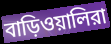
বাড়িওয়ালিরা